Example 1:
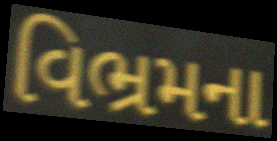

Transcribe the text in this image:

વિભ્રમના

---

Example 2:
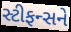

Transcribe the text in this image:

સ્ટીફન્સને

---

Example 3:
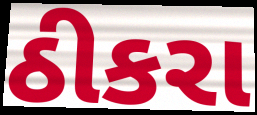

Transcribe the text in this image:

ઠીકરા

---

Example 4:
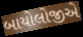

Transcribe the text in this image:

બાયોલોજીએ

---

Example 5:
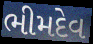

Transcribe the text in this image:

ભીમદેવ